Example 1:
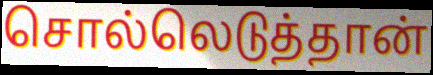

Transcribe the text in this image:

சொல்லெடுத்தான்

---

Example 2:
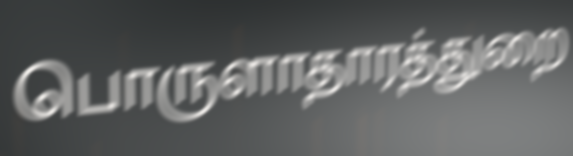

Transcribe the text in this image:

பொருளாதாரத்துறை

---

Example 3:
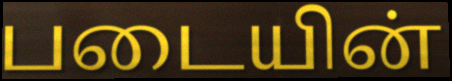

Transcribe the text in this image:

படையின்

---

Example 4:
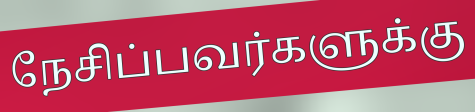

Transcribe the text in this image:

நேசிப்பவர்களுக்கு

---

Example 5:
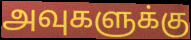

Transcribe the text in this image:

அவுகளுக்கு